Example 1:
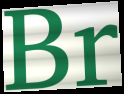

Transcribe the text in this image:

Br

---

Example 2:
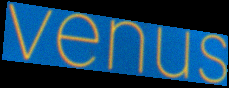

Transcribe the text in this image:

venus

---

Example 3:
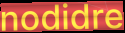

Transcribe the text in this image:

nodidre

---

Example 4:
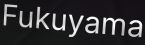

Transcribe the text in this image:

Fukuyama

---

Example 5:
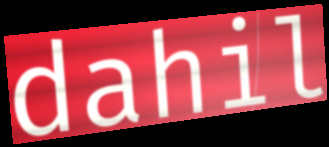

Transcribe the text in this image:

dahil